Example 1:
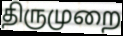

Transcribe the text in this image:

திருமுறை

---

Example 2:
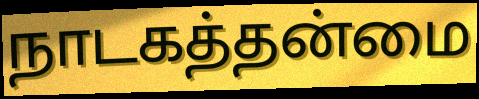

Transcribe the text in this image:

நாடகத்தன்மை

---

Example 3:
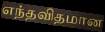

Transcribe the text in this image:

எந்தவிதமான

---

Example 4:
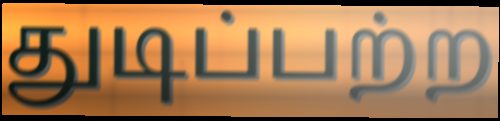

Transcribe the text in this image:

துடிப்பற்ற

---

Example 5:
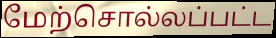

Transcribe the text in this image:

மேற்சொல்லப்பட்ட